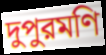
দুপুরমণি